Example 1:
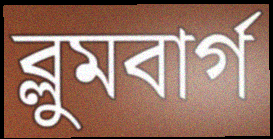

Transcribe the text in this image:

ব্লুমবার্গ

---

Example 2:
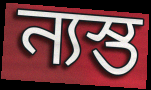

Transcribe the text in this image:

ন্যস্ত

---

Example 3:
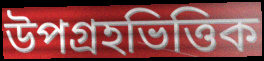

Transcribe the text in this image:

উপগ্রহভিত্তিক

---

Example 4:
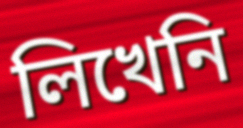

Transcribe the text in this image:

লিখেনি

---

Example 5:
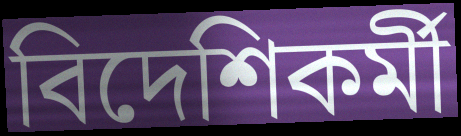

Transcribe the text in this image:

বিদেশিকর্মী